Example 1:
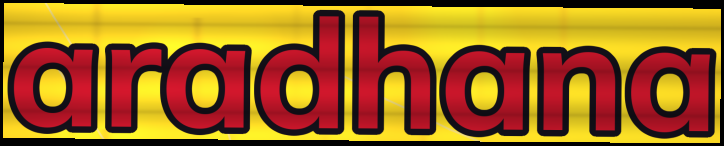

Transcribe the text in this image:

aradhana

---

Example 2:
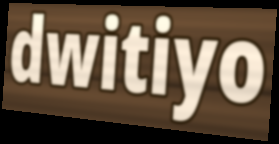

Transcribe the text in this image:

dwitiyo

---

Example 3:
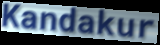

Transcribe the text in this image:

Kandakur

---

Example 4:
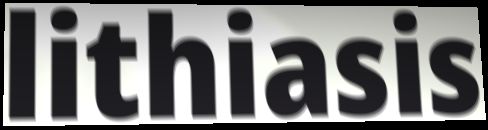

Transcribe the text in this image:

lithiasis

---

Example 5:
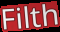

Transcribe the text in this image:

Filth